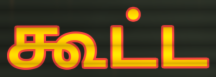
கூட்ட